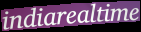
indiarealtime